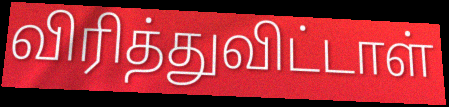
விரித்துவிட்டாள்